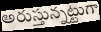
అరుస్తున్నట్టుగా